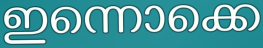
ഇന്നൊക്കെ